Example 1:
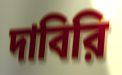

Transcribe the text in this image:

দাবিরি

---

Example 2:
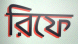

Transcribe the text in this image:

রিফে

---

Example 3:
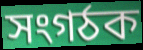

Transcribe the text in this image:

সংগঠক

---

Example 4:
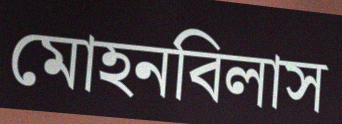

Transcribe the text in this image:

মোহনবিলাস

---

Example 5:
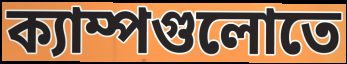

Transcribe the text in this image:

ক্যাম্পগুলোতে